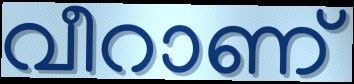
വീറാണ്